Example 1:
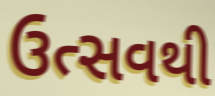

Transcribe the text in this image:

ઉત્સવથી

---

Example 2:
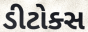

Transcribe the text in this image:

ડીટોક્સ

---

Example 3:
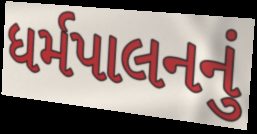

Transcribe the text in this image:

ધર્મપાલનનું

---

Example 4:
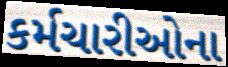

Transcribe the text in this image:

કર્મચારીઓના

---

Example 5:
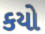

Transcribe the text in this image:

કયો